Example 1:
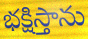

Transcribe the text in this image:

భక్షిస్తాను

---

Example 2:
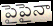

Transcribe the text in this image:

పైపైనా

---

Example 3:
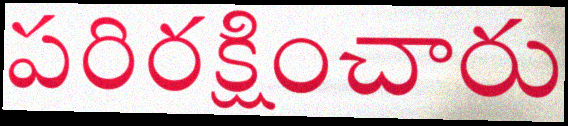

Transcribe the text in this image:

పరిరక్షించారు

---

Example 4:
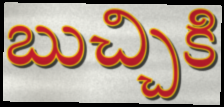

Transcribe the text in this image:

బుచ్చికి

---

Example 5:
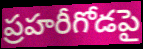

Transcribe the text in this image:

ప్రహరీగోడపై